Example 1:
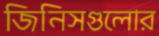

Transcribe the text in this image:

জিনিসগুলোর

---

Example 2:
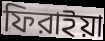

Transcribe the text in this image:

ফিরাইয়া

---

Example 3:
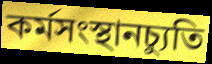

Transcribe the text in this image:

কর্মসংস্থানচ্যুতি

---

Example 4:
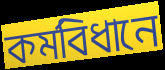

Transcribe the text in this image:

কর্মবিধানে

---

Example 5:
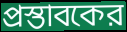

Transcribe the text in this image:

প্রস্তাবকের